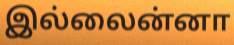
இல்லைன்னா